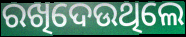
ରଖିଦେଉଥିଲେ